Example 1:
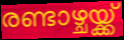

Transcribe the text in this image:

രണ്ടാഴ്ചയ്ക്ക്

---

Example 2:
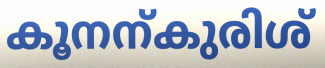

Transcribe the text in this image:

കൂനന്കുരിശ്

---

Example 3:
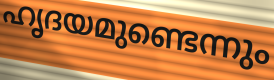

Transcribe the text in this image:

ഹൃദയമുണ്ടെന്നും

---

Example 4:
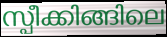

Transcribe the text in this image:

സ്പീക്കിങ്ങിലെ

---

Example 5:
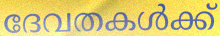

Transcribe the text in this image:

ദേവതകൾക്ക്